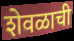
शेवळाची